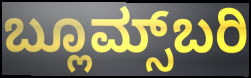
ಬ್ಲೂಮ್ಸ್‌ಬರಿ